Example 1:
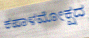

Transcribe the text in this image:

ಕಪಾಳಮೋಕ್ಷದ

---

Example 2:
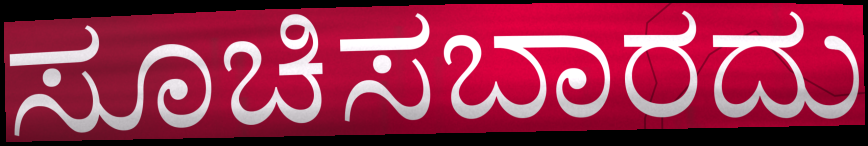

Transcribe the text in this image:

ಸೂಚಿಸಬಾರದು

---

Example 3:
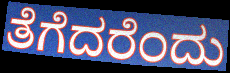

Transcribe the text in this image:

ತೆಗೆದರೆಂದು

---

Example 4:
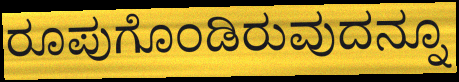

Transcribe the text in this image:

ರೂಪುಗೊಂಡಿರುವುದನ್ನೂ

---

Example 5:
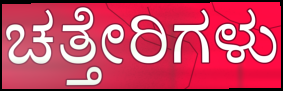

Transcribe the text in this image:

ಚತ್ತೇರಿಗಳು